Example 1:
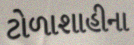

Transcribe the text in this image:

ટોળાશાહીના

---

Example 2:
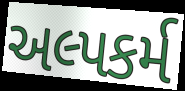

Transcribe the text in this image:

અલ્પકર્મ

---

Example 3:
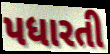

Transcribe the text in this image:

પધારતી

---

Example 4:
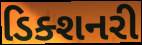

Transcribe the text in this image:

ડિક્શનરી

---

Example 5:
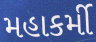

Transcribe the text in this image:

મહાકર્મી